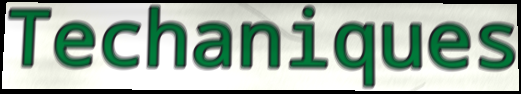
Techaniques